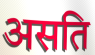
असति